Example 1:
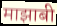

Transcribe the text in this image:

माझाबी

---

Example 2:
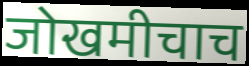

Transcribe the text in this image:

जोखमीचाच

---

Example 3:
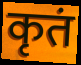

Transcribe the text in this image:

कृतं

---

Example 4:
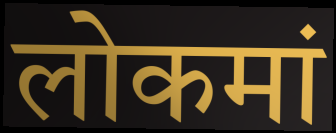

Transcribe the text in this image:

लोकमां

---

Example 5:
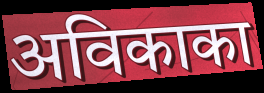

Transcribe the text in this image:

अविकाका